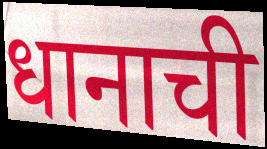
धानाची